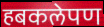
हबकलेपण